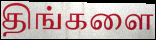
திங்களை